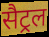
सैट्रल